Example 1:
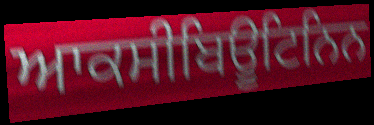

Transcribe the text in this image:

ਆਕਸੀਬਿਊਟਿਨਿਨ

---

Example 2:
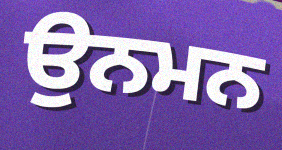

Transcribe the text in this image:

ਉਨਮਨ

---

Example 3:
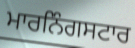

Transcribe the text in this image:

ਮਾਰਨਿੰਗਸਟਾਰ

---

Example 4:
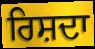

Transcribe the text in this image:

ਰਿਸ਼ਦਾ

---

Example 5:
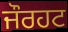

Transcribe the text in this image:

ਜੌਰਹਟ